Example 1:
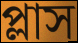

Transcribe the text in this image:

প্লাস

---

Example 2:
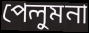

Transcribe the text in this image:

পেলুমনা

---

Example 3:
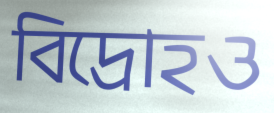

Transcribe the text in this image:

বিদ্রোহও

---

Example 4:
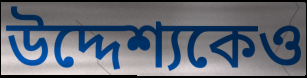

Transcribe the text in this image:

উদ্দেশ্যকেও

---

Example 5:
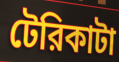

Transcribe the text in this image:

টেরিকাটা